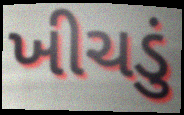
ખીચડું